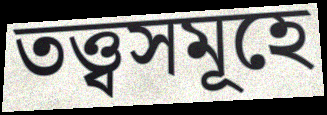
তত্ত্বসমূহে